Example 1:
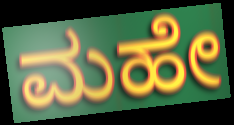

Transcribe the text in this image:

ಮಹೇ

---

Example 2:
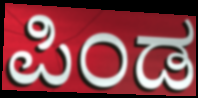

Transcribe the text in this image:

ಪಿಂಡ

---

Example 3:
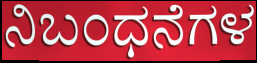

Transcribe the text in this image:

ನಿಬಂಧನೆಗಳ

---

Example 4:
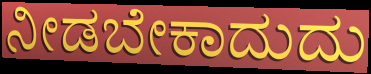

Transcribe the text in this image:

ನೀಡಬೇಕಾದುದು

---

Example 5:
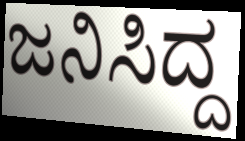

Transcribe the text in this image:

ಜನಿಸಿದ್ದ